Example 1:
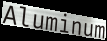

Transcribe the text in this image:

Aluminum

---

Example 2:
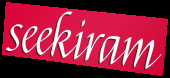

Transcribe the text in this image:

seekiram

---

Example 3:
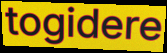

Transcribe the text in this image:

togidere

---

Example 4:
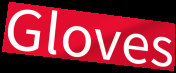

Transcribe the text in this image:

Gloves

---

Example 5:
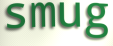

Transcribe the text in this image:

smug